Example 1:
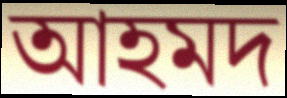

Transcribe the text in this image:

আহমদ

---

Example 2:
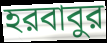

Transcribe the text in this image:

হরবাবুর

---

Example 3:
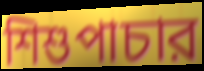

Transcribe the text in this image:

শিশুপাচার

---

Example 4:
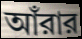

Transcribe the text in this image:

আঁরার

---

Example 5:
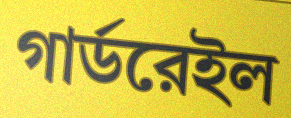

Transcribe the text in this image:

গার্ডরেইল